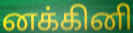
னக்கினி